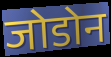
जोडोन